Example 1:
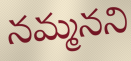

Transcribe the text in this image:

నమ్మనని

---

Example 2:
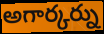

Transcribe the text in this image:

అగార్కర్ను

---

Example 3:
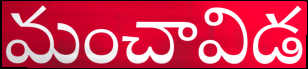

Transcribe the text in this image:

మంచావిడ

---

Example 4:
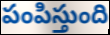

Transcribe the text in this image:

పంపిస్తుంది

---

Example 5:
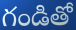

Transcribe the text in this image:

గండితో